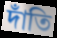
দাঁতি